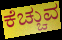
ಕೆಚ್ಚುವ